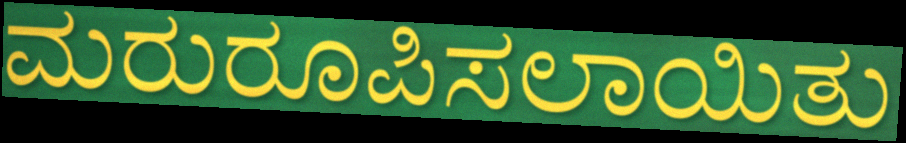
ಮರುರೂಪಿಸಲಾಯಿತು